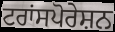
ਟਰਾਂਸਪੋਰੇਸ਼ਨ